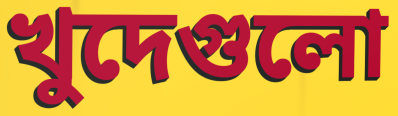
খুদেগুলো